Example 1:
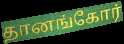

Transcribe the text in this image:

தானங்கோர்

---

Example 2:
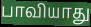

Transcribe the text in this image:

பாவியாது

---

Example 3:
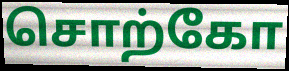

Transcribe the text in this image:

சொற்கோ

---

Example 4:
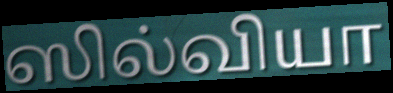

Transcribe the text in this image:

ஸில்வியா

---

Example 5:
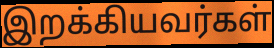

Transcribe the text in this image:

இறக்கியவர்கள்